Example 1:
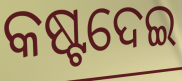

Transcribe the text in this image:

କଷ୍ଟଦେଇ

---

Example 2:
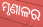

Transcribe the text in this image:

ମୃଣାଳର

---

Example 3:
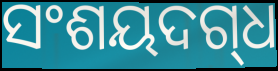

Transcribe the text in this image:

ସଂଶୟଦଗ୍‌ଧ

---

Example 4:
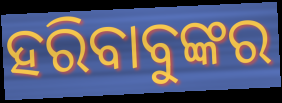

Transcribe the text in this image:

ହରିବାବୁଙ୍କର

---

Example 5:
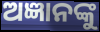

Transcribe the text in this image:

ଅଜ୍ଞାନଙ୍କୁ